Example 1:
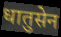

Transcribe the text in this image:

धातुसेन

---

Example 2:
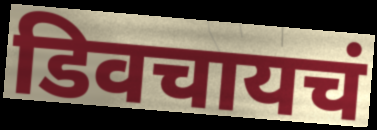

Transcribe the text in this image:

डिवचायचं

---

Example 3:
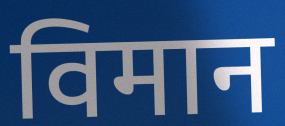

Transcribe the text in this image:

विमान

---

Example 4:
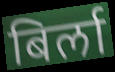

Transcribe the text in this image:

बिर्ला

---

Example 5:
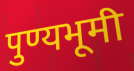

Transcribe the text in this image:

पुण्यभूमी